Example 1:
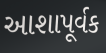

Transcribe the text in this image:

આશાપૂર્વક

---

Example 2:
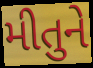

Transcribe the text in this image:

મીતુને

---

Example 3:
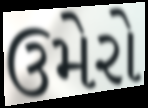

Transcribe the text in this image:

ઉમેરો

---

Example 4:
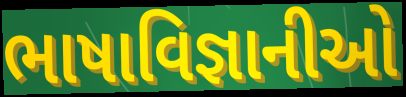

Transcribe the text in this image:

ભાષાવિજ્ઞાનીઓ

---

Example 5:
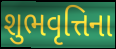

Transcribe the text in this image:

શુભવૃત્તિના